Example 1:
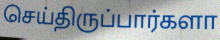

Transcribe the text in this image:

செய்திருப்பார்களா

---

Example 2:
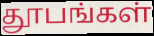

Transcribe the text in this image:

தூபங்கள்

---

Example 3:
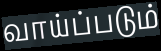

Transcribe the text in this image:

வாய்ப்படும்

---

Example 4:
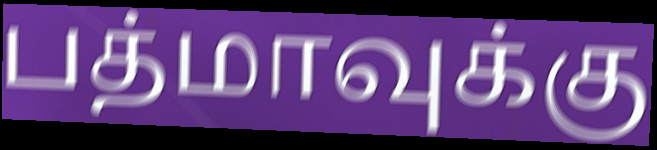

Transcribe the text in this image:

பத்மாவுக்கு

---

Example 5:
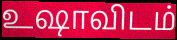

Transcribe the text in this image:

உஷாவிடம்